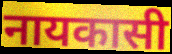
नायकासी